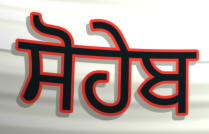
ਸੋਹੇਬ